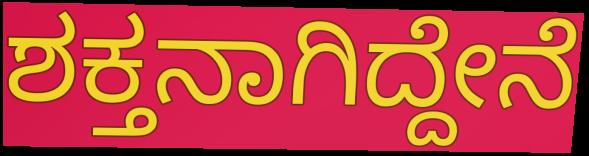
ಶಕ್ತನಾಗಿದ್ದೇನೆ